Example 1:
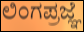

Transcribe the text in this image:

ಲಿಂಗಪ್ರಜ್ಞೆ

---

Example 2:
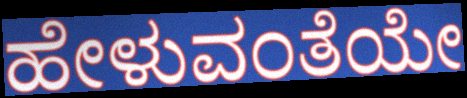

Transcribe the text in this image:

ಹೇಳುವಂತೆಯೇ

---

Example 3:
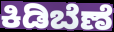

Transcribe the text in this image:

ಕಿಡಿಬೆಣೆ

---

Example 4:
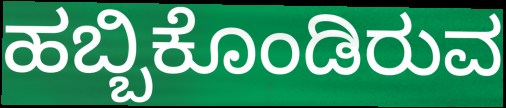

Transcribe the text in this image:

ಹಬ್ಬಿಕೊಂಡಿರುವ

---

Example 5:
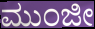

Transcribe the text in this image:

ಮುಂಜೀ